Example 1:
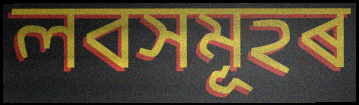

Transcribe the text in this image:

লবসমূহৰ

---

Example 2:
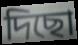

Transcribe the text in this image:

দিছো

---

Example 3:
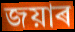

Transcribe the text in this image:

জয়াৰ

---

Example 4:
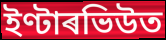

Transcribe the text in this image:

ইণ্টাৰভিউত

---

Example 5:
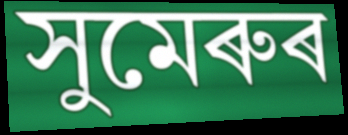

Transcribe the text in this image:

সুমেৰুৰ